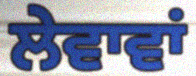
ਲੇਵਾਵਾਂ